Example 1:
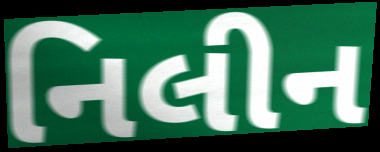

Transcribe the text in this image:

નિલીન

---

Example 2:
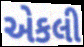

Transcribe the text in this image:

એકલી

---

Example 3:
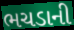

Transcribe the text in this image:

ભચડાની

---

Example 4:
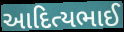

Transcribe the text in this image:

આદિત્યભાઈ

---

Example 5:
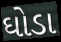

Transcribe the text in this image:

ઘોડા